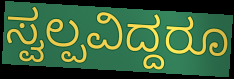
ಸ್ವಲ್ಪವಿದ್ದರೂ